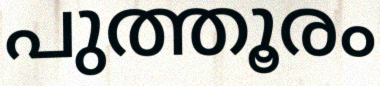
പുത്തൂരം